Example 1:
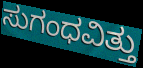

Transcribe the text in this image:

ಸುಗಂಧವಿತ್ತು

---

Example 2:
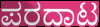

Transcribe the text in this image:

ಪರದಾಟ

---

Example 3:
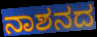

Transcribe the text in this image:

ನಾಶನದ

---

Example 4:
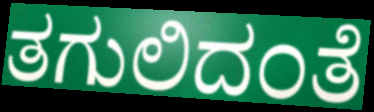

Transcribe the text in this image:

ತಗುಲಿದಂತೆ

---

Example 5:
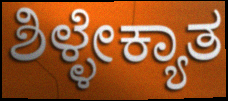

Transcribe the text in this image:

ಶಿಳ್ಳೇಕ್ಯಾತ